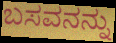
ಬಸವನನ್ನು